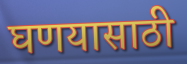
घणयासाठी